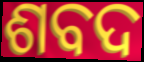
ଶବଦ